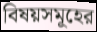
বিষয়সমূহের